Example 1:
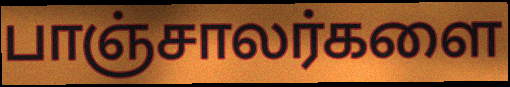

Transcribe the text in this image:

பாஞ்சாலர்களை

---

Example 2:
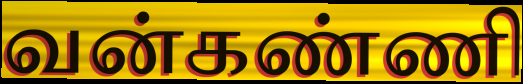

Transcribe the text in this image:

வன்கண்ணி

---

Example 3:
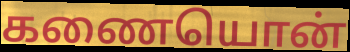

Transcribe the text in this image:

கணையொன்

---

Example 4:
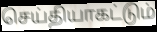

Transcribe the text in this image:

செய்தியாகட்டும்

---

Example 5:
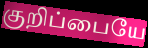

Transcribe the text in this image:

குறிப்பையே